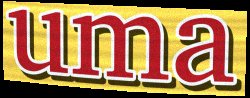
uma